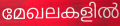
മേഖലകളിൽ